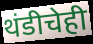
थंडीचेही